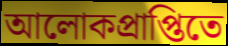
আলোকপ্রাপ্তিতে